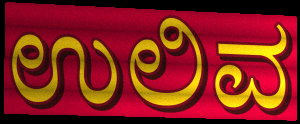
ಉಲಿವ